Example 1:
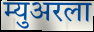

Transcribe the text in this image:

म्युअरला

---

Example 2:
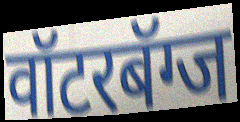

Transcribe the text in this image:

वॉटरबॅग्ज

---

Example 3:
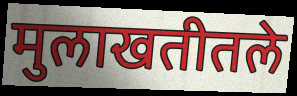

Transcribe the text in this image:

मुलाखतीतले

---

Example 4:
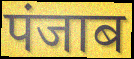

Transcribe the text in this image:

पंजाब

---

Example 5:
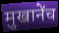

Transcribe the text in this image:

मुखानेंच